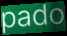
pado